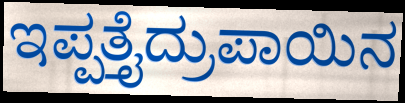
ಇಪ್ಪತ್ತೈದ್ರುಪಾಯಿನ